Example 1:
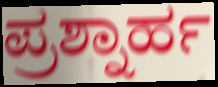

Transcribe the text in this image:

ಪ್ರಶ್ನಾರ್ಹ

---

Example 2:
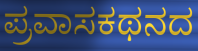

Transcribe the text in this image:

ಪ್ರವಾಸಕಥನದ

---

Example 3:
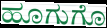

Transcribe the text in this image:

ಹೂಗುಗೊ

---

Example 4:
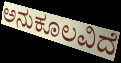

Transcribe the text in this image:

ಅನುಕೂಲವಿದೆ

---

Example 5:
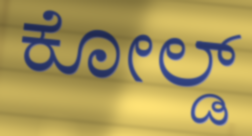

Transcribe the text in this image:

ಕೋಲ್ಡ್